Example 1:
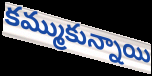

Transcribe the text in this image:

కమ్ముకున్నాయి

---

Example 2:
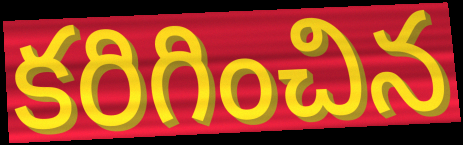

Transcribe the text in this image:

కరిగించిన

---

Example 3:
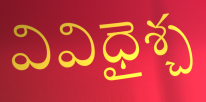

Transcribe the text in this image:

వివిధైశ్చ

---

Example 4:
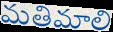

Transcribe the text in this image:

మతిమాలి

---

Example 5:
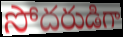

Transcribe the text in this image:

సోదరుడిగా